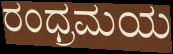
ರಂಧ್ರಮಯ